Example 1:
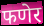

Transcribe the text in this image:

फणेर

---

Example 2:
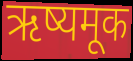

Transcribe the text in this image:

ऋष्यमूक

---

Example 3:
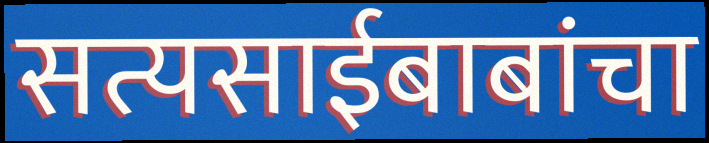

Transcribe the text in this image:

सत्यसाईबाबांचा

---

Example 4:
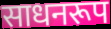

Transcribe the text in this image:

साधनरूप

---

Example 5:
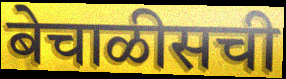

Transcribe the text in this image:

बेचाळीसची